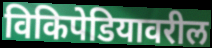
विकिपेडियावरील